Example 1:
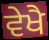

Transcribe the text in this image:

ਵੇਖੈ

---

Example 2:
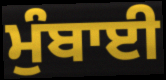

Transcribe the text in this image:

ਮੁੰਬਾਈ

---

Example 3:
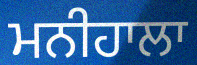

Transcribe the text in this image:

ਮਨੀਹਾਲਾ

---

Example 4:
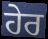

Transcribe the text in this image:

ਹੇਰ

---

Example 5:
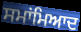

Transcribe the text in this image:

ਸਮਾਂਮਿਆਦ